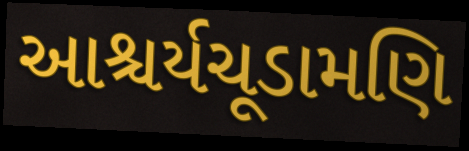
આશ્ચર્યચૂડામણિ